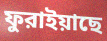
ফুরাইয়াছে